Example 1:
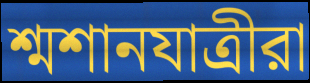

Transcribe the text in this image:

শ্মশানযাত্রীরা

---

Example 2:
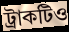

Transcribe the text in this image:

ট্রাকটিও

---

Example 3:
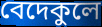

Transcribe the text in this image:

বেদেকুলে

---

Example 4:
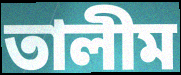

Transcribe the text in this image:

তালীম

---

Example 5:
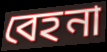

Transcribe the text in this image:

বেহনা